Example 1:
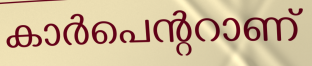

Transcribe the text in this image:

കാർപെന്ററാണ്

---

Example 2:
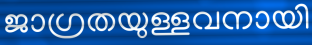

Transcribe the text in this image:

ജാഗ്രതയുള്ളവനായി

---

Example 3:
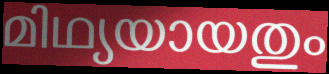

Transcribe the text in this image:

മിഥ്യയായതും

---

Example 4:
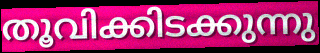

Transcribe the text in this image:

തൂവിക്കിടക്കുന്നു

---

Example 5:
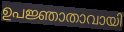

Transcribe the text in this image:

ഉപജ്ഞാതാവായി